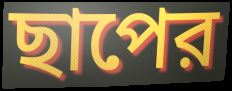
ছাপের